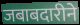
जबाबदारीने